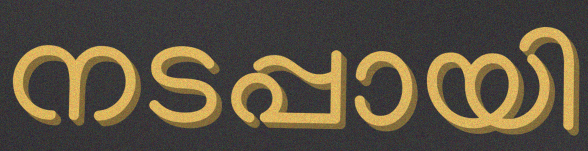
നടപ്പായി